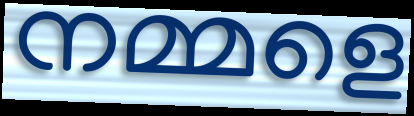
നമ്മളെ